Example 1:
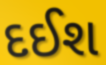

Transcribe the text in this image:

દઈશ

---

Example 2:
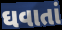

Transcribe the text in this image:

ઘવાતાં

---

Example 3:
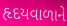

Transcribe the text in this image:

હૃદયવાળાને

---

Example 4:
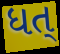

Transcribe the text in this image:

ધત્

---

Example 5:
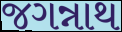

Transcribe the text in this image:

જગન્નાથ